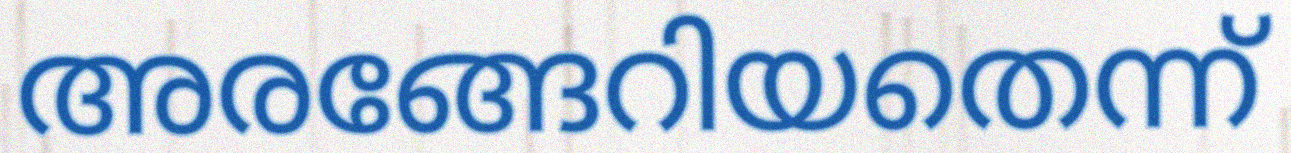
അരങ്ങേറിയതെന്ന്